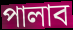
পালাব